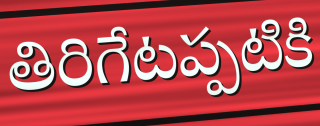
తిరిగేటప్పటికి